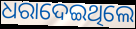
ଧରାଦେଇଥିଲେ